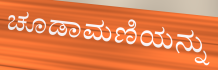
ಚೂಡಾಮಣಿಯನ್ನು